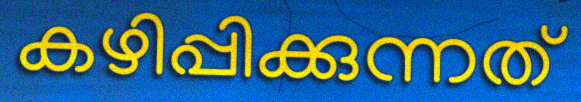
കഴിപ്പിക്കുന്നത്